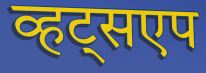
व्हट्सएप